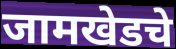
जामखेडचे